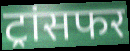
ट्रांसफर